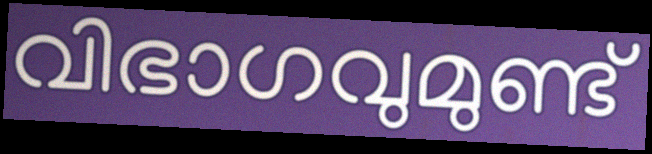
വിഭാഗവുമുണ്ട്